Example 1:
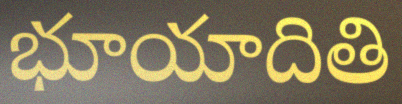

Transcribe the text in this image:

భూయాదితి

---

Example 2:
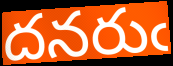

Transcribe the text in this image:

దనరుఁ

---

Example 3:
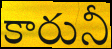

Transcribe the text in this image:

కారునీ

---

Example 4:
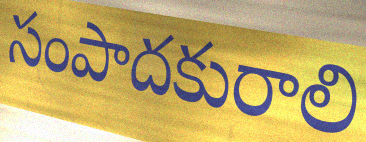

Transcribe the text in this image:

సంపాదకురాలి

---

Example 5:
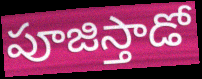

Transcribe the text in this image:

పూజిస్తాడో